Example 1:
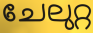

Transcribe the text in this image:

ചേലുറ്റ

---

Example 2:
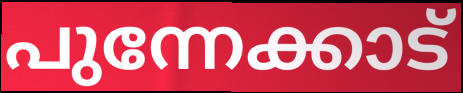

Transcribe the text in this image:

പുന്നേക്കാട്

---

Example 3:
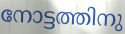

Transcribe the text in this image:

നോട്ടത്തിനു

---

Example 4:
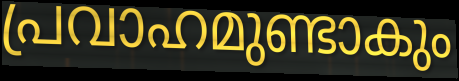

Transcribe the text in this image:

പ്രവാഹമുണ്ടാകും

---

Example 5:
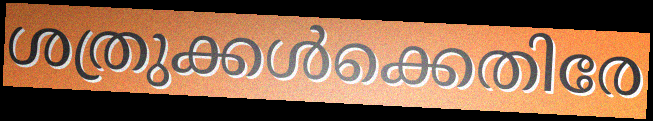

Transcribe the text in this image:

ശത്രുക്കൾക്കെതിരേ